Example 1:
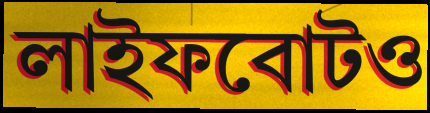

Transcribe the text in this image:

লাইফবোটও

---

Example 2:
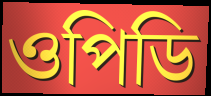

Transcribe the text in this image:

ওপিডি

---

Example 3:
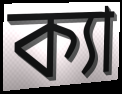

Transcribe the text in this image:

ক্যা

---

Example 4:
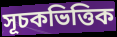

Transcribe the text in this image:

সূচকভিত্তিক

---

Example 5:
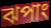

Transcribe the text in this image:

ঝপাং